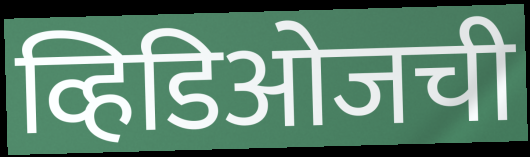
व्हिडिओजची